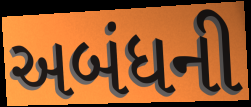
અબંધની